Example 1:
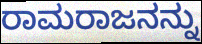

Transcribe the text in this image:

ರಾಮರಾಜನನ್ನು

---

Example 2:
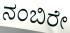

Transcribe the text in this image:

ನಂಬಿರೇ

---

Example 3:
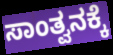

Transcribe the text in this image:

ಸಾಂತ್ವನಕ್ಕೆ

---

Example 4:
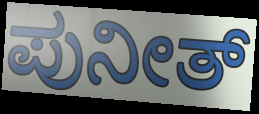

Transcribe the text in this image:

ಪುನೀತ್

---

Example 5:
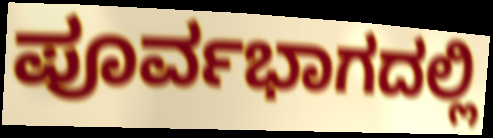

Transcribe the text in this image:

ಪೂರ್ವಭಾಗದಲ್ಲಿ